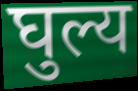
घुल्य